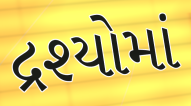
દ્રશ્યોમાં